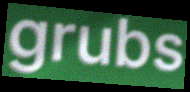
grubs